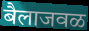
बैलाजवळ